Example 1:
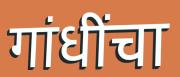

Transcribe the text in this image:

गांधींचा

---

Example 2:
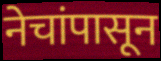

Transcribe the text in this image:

नेचांपासून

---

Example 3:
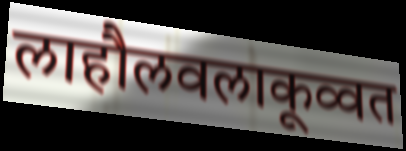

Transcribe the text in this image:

लाहौलवलाकूव्वत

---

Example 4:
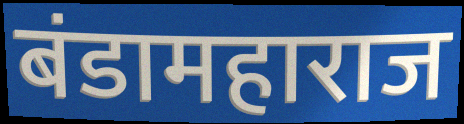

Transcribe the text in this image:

बंडामहाराज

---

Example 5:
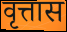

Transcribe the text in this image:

वृत्तास